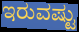
ಇರುವಷ್ಟು